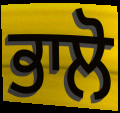
ਭਾਲੋ